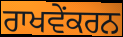
ਰਾਖਵੇਂਕਰਨ